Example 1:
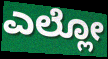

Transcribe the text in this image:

ಎಲ್ಲೋ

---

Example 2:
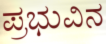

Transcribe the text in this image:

ಪ್ರಭುವಿನ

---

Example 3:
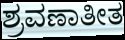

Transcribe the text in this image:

ಶ್ರವಣಾತೀತ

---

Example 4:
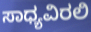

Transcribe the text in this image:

ಸಾಧ್ಯವಿರಲಿ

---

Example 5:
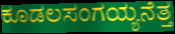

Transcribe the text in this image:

ಕೂಡಲಸಂಗಯ್ಯನೆತ್ತ